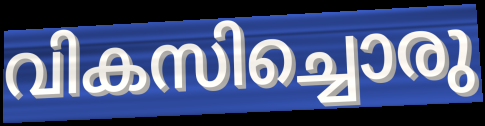
വികസിച്ചൊരു